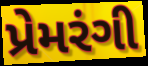
પ્રેમરંગી